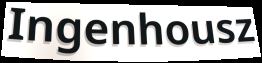
Ingenhousz